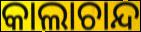
କାଲାଚାନ୍ଦ